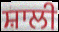
ਸ਼ਾਲੀ